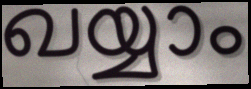
ഖയ്യാം